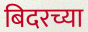
बिदरच्या